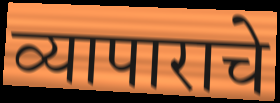
व्यापाराचे